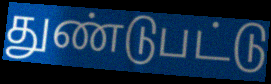
துண்டுபட்டு